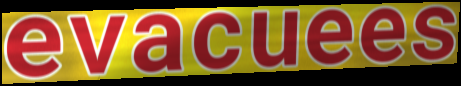
evacuees